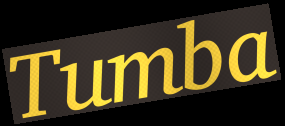
Tumba